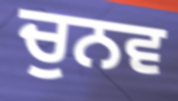
ਚੁਨਵ